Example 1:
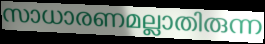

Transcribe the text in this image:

സാധാരണമല്ലാതിരുന്ന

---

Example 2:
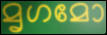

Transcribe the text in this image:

മൃഗമോ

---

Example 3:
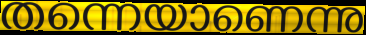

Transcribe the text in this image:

തന്നെയാണെന്നു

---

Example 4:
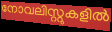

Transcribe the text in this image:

നോവലിസ്റ്റുകളിൽ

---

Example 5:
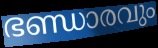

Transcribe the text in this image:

ഭണ്ഡാരവും